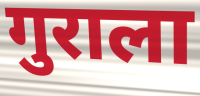
गुराला